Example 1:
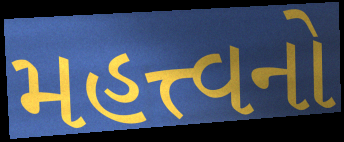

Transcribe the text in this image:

મહત્ત્વનો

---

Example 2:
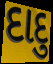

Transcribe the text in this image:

દાદુ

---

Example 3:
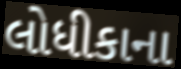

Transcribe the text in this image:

લોધીકાના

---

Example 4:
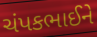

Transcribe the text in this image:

ચંપકભાઈને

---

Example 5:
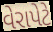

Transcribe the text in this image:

વેરાપેટે